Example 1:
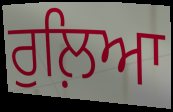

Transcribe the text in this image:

ਰੁਲ਼ਿਆ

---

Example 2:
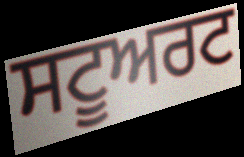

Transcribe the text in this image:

ਸਟੂਅਰਟ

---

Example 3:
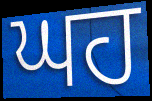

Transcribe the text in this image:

ਘਹ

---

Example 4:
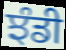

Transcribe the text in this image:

ਝੰਡੀ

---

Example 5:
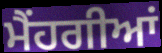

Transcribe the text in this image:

ਮੈਂਹਗੀਆਂ